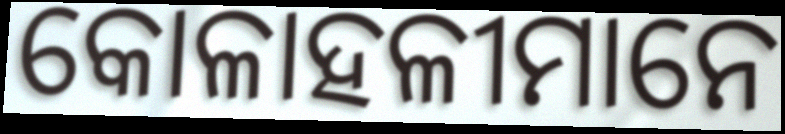
କୋଳାହଳୀମାନେ